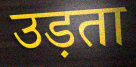
उड़ता